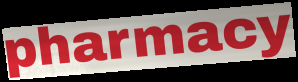
pharmacy